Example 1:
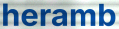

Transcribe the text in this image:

heramb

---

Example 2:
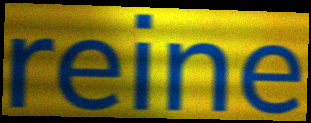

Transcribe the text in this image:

reine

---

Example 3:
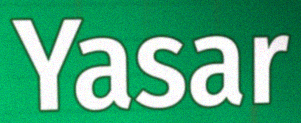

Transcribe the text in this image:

Yasar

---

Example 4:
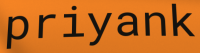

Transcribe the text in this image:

priyank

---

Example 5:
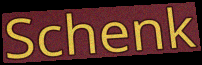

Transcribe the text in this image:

Schenk